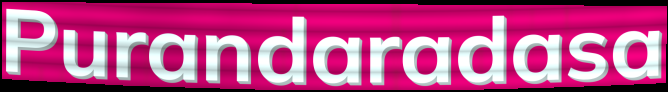
Purandaradasa